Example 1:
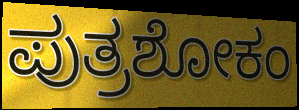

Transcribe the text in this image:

ಪುತ್ರಶೋಕಂ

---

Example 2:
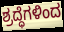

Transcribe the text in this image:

ಶ್ರದ್ಧೆಗಳಿಂದ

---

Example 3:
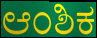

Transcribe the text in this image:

ಆಂಶಿಕ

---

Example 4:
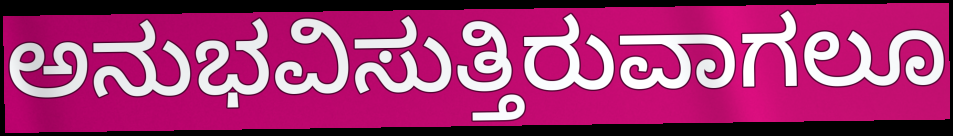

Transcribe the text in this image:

ಅನುಭವಿಸುತ್ತಿರುವಾಗಲೂ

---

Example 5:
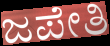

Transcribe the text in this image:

ಜಪೇತಿ